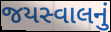
જયસ્વાલનું